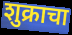
शुक्राचा